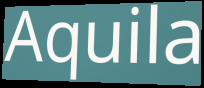
Aquila